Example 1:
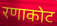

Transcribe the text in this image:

रणाकोट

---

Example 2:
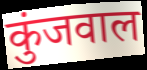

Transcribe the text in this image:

कुंजवाल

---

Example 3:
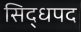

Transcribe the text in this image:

सिद्धपद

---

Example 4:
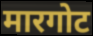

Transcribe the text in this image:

मारगोट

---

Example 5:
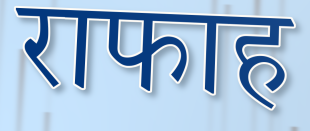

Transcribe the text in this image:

राफाह